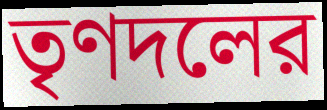
তৃণদলের